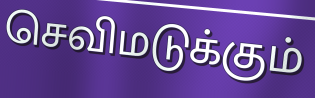
செவிமடுக்கும்